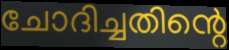
ചോദിച്ചതിന്റെ